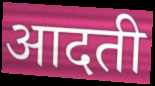
आदती